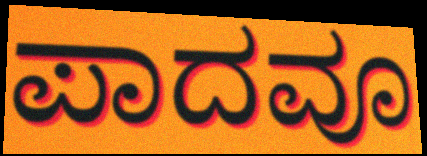
ಪಾದವೂ